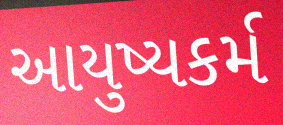
આયુષ્યકર્મ